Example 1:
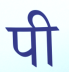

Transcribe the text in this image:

पी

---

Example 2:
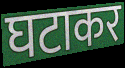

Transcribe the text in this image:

घटाकर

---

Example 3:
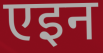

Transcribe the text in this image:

एइन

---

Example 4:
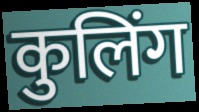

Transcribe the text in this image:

कुलिंग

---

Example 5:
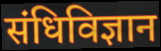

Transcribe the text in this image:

संधिविज्ञान